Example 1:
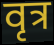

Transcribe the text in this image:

वृत्र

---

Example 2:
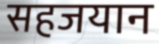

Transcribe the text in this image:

सहजयान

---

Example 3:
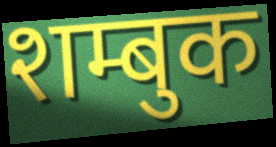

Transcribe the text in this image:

शम्बुक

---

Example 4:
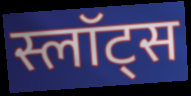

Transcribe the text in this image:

स्लॉट्स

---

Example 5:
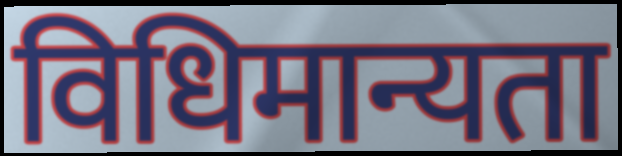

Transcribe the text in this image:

विधिमान्यता